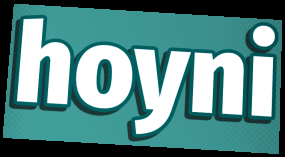
hoyni